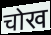
चोख